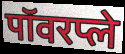
पॉवरप्ले